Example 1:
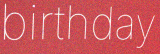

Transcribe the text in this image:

birthday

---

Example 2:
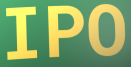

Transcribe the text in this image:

IPO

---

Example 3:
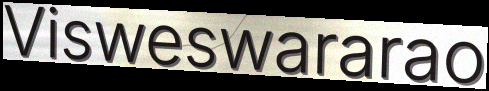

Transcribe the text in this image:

Visweswararao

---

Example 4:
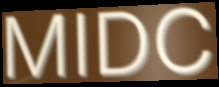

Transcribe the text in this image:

MIDC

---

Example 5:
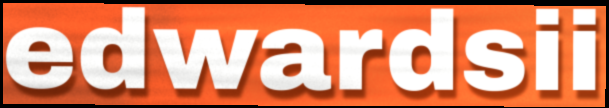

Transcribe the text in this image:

edwardsii